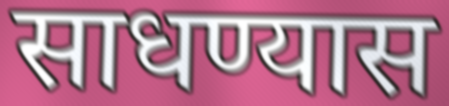
साधण्यास